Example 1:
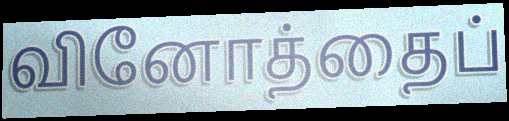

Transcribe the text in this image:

வினோத்தைப்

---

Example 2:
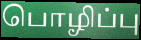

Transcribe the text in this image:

பொழிப்பு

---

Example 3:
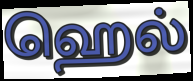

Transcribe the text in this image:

ஹெல்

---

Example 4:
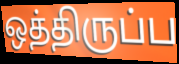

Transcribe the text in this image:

ஒத்திருப்ப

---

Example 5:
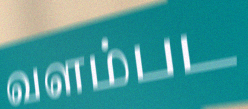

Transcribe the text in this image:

வளம்பட